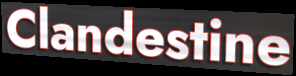
Clandestine